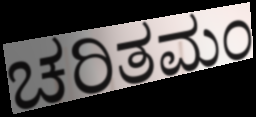
ಚರಿತಮಂ